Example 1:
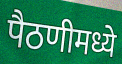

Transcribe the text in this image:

पैठणीमध्ये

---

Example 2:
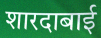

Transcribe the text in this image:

शारदाबाई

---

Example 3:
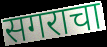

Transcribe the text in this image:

सगराचा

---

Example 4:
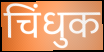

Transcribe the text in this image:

चिंधुक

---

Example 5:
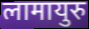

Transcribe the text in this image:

लामायुरु